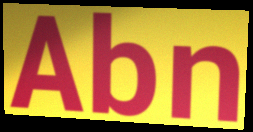
Abn